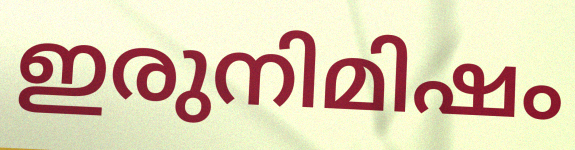
ഇരുനിമിഷം